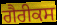
ਗੈਰੀਕਸ